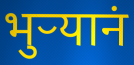
भुऱ्यानं